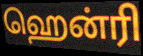
ஹென்ரி